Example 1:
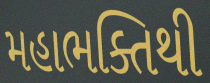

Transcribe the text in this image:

મહાભક્તિથી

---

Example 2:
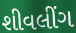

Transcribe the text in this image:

શીવલીંગ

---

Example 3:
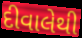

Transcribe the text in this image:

દીવાલેથી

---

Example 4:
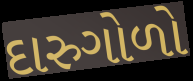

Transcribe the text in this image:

દારુગોળો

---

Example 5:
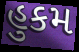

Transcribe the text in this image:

હુકમ